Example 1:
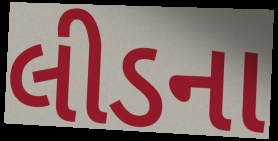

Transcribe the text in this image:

લીડના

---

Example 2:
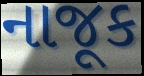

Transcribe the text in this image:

નાજૂક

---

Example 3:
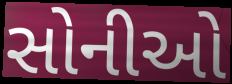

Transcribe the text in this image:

સોનીઓ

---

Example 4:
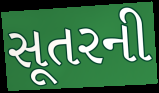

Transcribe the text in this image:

સૂતરની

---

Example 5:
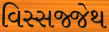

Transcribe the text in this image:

વિસ્સજ્જેથ